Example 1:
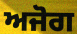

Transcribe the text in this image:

ਅਜੋਗ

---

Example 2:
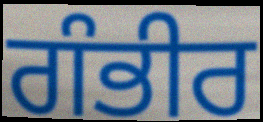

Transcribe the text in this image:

ਗੰਭੀਰ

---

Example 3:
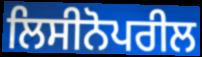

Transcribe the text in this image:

ਲਿਸੀਨੋਪਰੀਲ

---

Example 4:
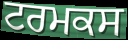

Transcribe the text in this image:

ਟਰਮਕਸ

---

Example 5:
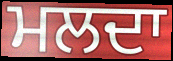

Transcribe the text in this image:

ਮਲਦਾ